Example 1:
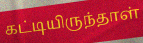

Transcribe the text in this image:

கட்டியிருந்தாள்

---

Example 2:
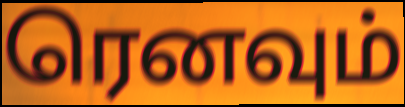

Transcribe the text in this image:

ரெனவும்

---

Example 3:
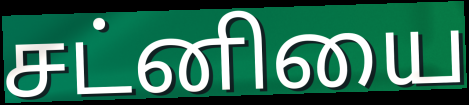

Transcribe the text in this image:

சட்னியை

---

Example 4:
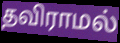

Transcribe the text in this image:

தவிராமல்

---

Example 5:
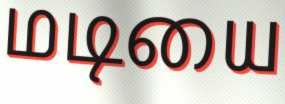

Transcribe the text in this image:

மடியை